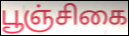
பூஞ்சிகை